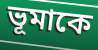
ভূমাকে